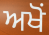
ਅਖੋਂ